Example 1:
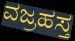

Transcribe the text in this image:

ವಜ್ರಹಸ್ತ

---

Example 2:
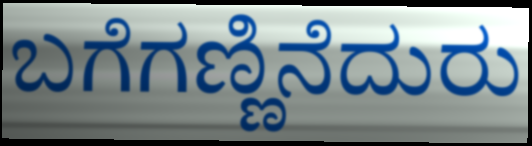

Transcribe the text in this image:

ಬಗೆಗಣ್ಣಿನೆದುರು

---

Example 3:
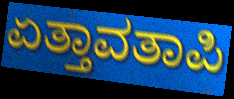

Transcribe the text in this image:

ಏತ್ತಾವತಾಪಿ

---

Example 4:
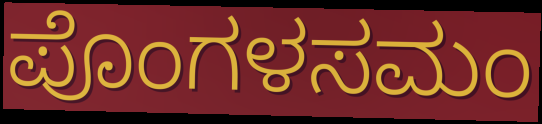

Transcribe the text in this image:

ಪೊಂಗಳಸಮಂ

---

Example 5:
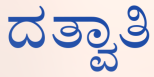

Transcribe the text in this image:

ದತ್ವಾತಿ